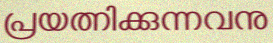
പ്രയത്നിക്കുന്നവനു